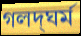
গলদ্‌ঘর্ম